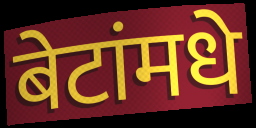
बेटांमधे